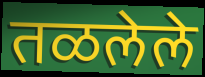
तळलेले